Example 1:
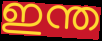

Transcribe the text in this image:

ഇന്ത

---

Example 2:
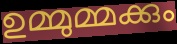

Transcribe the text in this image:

ഉമ്മുമ്മക്കും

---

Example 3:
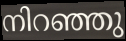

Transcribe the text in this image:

നിറഞ്ഞു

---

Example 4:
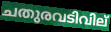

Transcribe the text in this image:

ചതുരവടിവില്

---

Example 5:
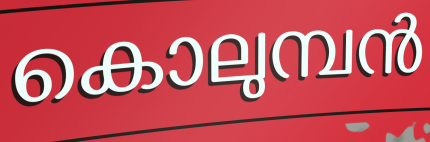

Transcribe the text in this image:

കൊലുമ്പൻ